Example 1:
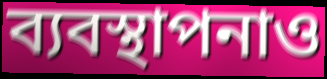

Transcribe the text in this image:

ব্যবস্থাপনাও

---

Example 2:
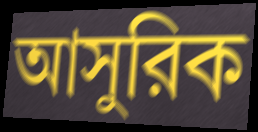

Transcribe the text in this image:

আসুরিক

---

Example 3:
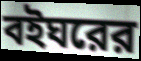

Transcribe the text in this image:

বইঘরের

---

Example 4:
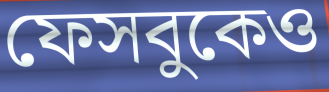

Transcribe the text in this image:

ফেসবুকেও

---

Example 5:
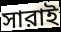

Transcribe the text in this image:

সারাই